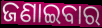
ଜଣାଇବାର